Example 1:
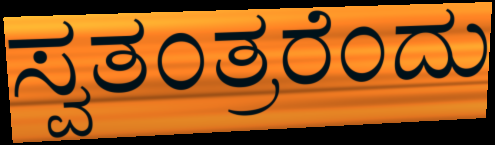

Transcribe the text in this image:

ಸ್ವತಂತ್ರರೆಂದು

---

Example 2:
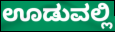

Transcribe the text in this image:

ಊಡುವಲ್ಲಿ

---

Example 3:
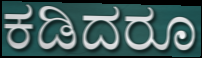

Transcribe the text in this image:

ಕಡಿದರೂ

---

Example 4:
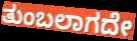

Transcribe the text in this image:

ತುಂಬಲಾಗದೇ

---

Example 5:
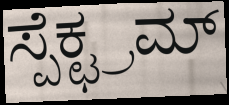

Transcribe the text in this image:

ಸ್ಪೆಕ್ಟ್ರಮ್